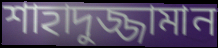
শাহাদুজ্জামান